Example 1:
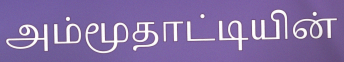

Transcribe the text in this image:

அம்மூதாட்டியின்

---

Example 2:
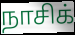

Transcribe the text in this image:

நாசிக்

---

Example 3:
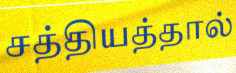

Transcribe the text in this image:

சத்தியத்தால்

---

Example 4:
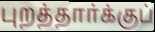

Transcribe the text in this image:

புறத்தார்க்குப்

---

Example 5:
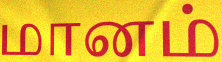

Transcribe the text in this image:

மானம்